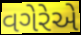
વગેરેએ